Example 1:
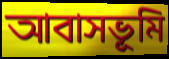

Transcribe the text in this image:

আবাসভূমি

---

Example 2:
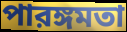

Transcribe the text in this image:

পারঙ্গমতা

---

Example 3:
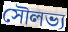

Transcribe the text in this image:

সৌলভ্য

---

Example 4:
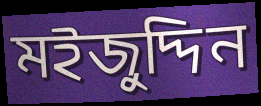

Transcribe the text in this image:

মইজুদ্দিন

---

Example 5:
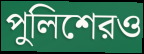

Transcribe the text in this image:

পুলিশেরও